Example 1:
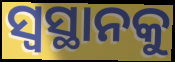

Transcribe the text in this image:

ସ୍ୱସ୍ଥାନକୁ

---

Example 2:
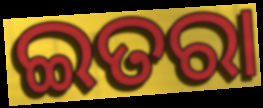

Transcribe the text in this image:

ଇତରା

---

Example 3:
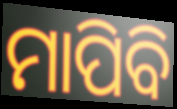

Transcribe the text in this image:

ମାପିବି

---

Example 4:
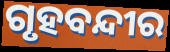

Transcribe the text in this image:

ଗୃହବନ୍ଦୀର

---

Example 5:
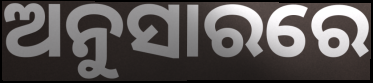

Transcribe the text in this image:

ଅନୁସାରରେ